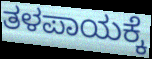
ತಳಪಾಯಕ್ಕೆ